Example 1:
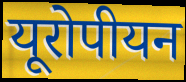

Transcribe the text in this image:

यूरोपीयन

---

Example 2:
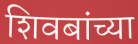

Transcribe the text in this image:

शिवबांच्या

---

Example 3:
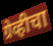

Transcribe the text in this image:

ग्रेव्हीचा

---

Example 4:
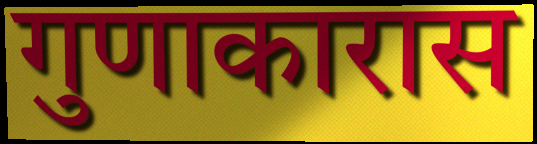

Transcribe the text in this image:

गुणाकारास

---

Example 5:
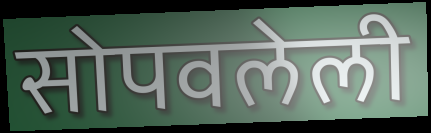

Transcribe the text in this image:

सोपवलेली